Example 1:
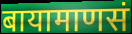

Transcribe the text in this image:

बायामाणसं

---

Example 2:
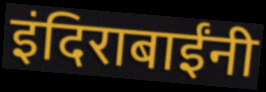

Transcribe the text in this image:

इंदिराबाईंनी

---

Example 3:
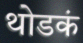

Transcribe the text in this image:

थोडकं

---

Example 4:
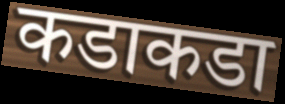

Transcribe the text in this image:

कडाकडा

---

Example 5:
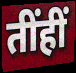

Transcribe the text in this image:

तींहीं